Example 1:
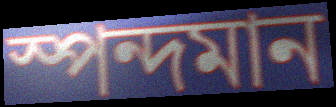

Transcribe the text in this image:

স্পন্দমান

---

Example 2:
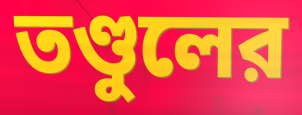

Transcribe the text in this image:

তণ্ডুলের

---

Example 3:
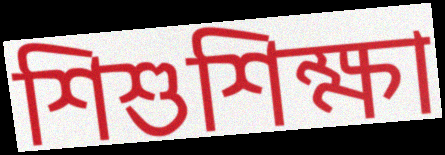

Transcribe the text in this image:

শিশুশিক্ষা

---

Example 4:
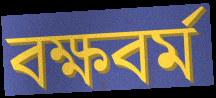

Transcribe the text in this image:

বক্ষবর্ম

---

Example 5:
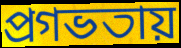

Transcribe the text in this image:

প্রগভতায়